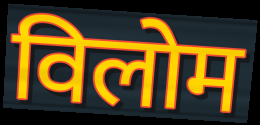
विलोम